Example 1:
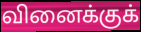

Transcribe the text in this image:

வினைக்குக்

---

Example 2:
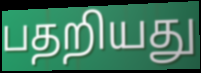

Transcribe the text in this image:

பதறியது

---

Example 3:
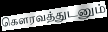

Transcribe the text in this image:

கௌரவத்துடனும்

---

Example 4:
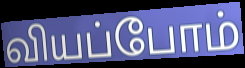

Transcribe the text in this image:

வியப்போம்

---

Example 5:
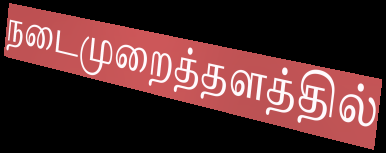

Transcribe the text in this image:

நடைமுறைத்தளத்தில்